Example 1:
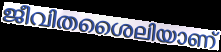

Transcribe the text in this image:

ജീവിതശൈലിയാണ്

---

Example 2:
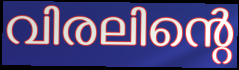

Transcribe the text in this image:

വിരലിന്റെ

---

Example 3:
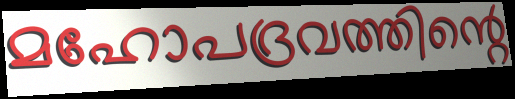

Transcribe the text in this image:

മഹോപദ്രവത്തിന്റെ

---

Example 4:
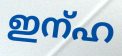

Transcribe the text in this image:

ഇന്ഹ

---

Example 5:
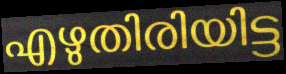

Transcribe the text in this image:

എഴുതിരിയിട്ട